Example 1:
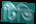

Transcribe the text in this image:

টিভি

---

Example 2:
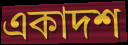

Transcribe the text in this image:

একাদশ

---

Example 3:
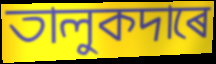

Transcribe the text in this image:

তালুকদাৰে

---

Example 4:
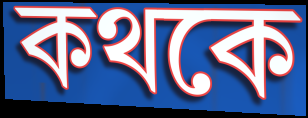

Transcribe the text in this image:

কথকে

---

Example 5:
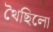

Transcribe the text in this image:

থৈছিলো